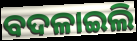
ବଦଳାଇଲି